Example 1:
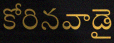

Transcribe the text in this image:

కోరినవాడై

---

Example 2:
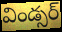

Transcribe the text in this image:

విండ్సర్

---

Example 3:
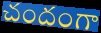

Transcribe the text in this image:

చందంగా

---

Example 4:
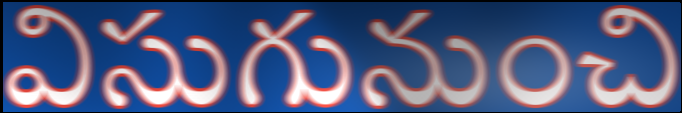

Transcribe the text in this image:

విసుగునుంచి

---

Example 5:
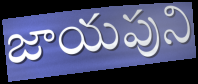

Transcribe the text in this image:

జాయపుని